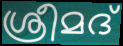
ശ്രീമദ്